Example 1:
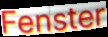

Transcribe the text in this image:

Fenster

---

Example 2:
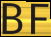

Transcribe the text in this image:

BF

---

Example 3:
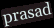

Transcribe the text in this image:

prasad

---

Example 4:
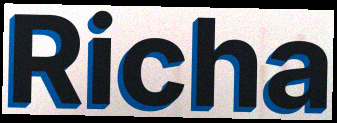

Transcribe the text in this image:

Richa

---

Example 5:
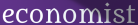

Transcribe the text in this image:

economist